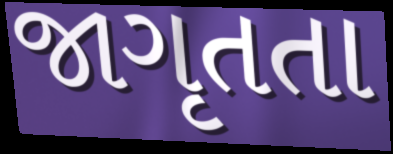
જાગૃતતા